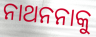
ନାଥନନାକୁ